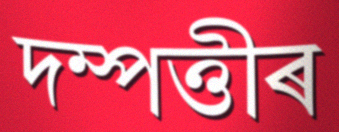
দম্পত্তীৰ